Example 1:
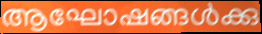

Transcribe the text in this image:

ആഘോഷങ്ങൾക്കു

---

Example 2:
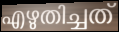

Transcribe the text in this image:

എഴുതിച്ചത്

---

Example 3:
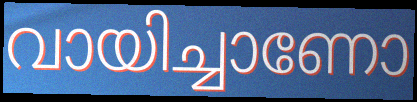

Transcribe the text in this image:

വായിച്ചാണോ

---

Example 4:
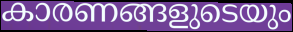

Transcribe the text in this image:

കാരണങ്ങളുടെയും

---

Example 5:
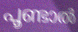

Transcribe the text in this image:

പൂണ്ടാൽ